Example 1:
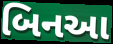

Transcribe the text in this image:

બિનઆ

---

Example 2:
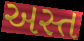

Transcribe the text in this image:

અસ્ત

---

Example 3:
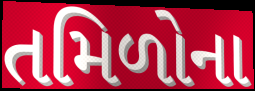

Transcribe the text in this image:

તમિળોના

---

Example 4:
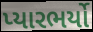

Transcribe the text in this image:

પ્યારભર્યો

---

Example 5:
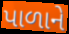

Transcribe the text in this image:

પાળાને